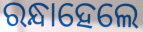
ରନ୍ଧାହେଲେ